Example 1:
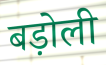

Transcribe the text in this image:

बड़ोली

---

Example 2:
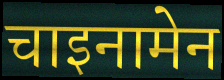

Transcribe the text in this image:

चाइनामेन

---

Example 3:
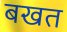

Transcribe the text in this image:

बखत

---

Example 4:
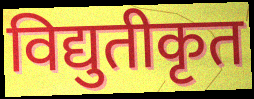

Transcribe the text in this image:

विद्युतीकृत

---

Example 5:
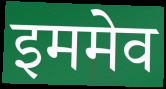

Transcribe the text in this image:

इममेव